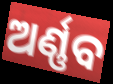
ଅର୍ଣ୍ଣବ